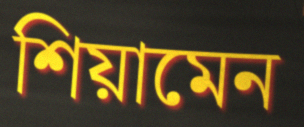
শিয়ামেন